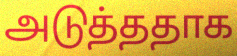
அடுத்ததாக